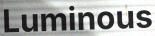
Luminous